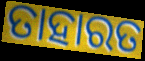
ତାହାରତ